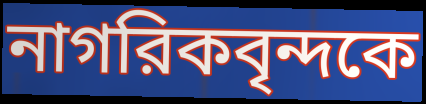
নাগরিকবৃন্দকে